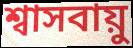
শ্বাসবায়ু